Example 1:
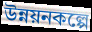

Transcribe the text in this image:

উন্নয়নকল্পে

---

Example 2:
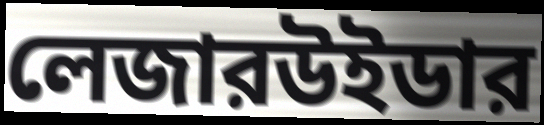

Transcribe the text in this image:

লেজারউইডার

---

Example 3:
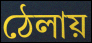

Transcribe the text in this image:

ঠেলায়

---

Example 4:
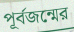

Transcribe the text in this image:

পূর্বজন্মের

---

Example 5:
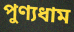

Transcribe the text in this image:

পুণ্যধাম